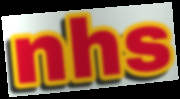
nhs